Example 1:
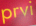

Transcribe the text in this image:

prvi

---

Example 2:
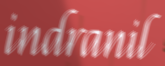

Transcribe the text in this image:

indranil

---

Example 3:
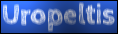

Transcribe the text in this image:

Uropeltis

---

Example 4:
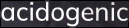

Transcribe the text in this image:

acidogenic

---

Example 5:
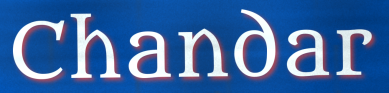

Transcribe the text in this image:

Chandar